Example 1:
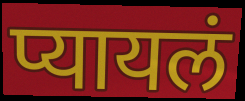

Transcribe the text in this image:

प्यायलं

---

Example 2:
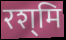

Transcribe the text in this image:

रश्मि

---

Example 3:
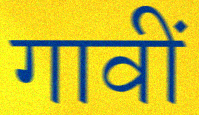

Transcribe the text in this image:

गावीं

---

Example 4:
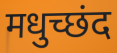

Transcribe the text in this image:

मधुच्छंद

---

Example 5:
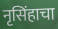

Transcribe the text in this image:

नृसिंहाचा